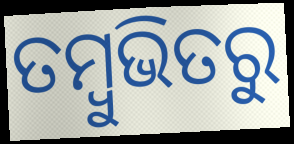
ତମ୍ବୁଭିତରୁ